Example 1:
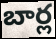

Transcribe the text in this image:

బార్ల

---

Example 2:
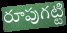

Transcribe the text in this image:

రూపుగట్టి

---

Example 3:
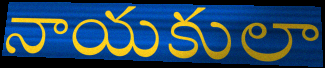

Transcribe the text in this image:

నాయకులా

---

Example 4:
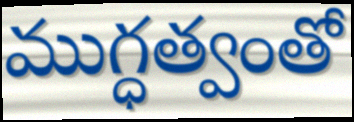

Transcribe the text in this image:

ముగ్ధత్వంతో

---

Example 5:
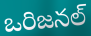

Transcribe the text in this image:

ఒరిజనల్